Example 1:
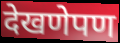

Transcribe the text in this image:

देखणेपण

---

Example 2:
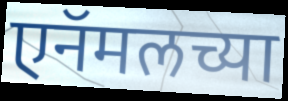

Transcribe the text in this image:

एनॅमलच्या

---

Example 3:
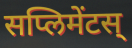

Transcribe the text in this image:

सप्लिमेंटस्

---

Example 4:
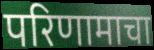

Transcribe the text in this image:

परिणामाचा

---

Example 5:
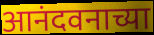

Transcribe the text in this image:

आनंदवनाच्या